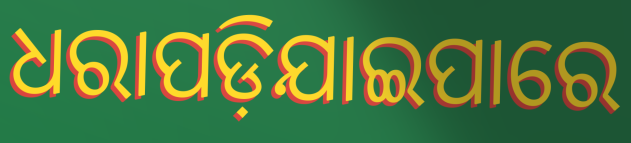
ଧରାପଡ଼ିଯାଇପାରେ